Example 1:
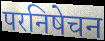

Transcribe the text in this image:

परनिषेचन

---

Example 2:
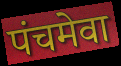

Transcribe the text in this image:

पंचमेवा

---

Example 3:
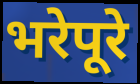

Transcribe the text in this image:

भरेपूरे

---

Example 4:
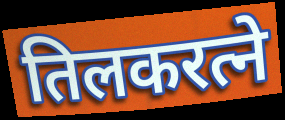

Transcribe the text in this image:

तिलकरत्ने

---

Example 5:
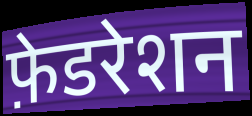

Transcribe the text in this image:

फ़ेडरेशन